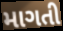
માગતી